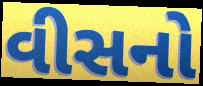
વીસનો